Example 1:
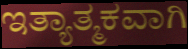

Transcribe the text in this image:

ಇತ್ಯಾತ್ಮಕವಾಗಿ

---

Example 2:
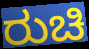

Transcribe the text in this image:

ರುಚಿ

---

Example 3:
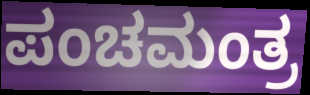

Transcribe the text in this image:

ಪಂಚಮಂತ್ರ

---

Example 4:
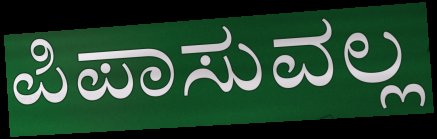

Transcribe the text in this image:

ಪಿಪಾಸುವಲ್ಲ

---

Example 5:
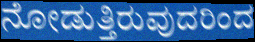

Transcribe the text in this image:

ನೋಡುತ್ತಿರುವುದರಿಂದ